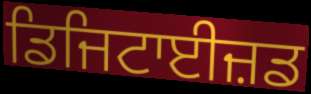
ਡਿਜਿਟਾਈਜ਼ਡ